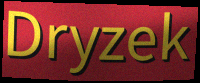
Dryzek